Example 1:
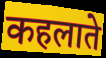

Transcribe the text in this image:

कहलाते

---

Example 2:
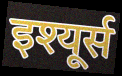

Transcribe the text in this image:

इश्यूर्स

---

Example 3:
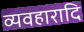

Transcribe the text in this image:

व्यवहारादि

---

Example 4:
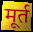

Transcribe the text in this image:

मूर्त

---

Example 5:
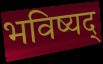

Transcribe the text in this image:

भविष्यद्